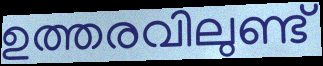
ഉത്തരവിലുണ്ട്